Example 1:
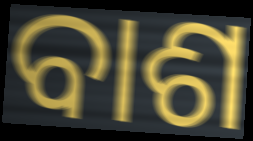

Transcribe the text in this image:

ବାଶ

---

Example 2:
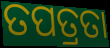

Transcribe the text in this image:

ତପତ୍ରତା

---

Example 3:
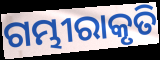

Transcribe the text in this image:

ଗମ୍ଭୀରାକୃତି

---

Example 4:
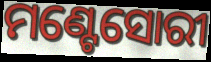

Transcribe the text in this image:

ମଣ୍ଟେସୋରୀ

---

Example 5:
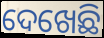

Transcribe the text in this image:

ଦେଖେଛି